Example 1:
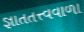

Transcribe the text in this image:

જ્ઞાતતત્ત્વવાળા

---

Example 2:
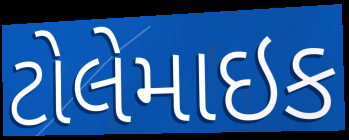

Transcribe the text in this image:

ટોલેમાઇક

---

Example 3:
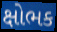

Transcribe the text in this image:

ક્ષોભક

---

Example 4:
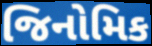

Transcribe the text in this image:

જિનોમિક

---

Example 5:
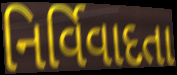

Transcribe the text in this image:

નિર્વિવાદતા